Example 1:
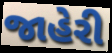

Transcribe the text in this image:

જાહેરી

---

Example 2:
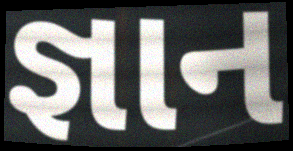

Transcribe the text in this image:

જ્ઞાન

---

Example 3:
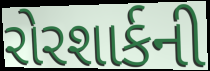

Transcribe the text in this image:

રોરશાર્કની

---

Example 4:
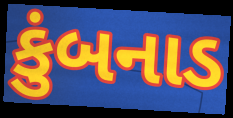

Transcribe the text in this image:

કુંબનાડ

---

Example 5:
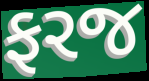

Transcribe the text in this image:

ફરજ